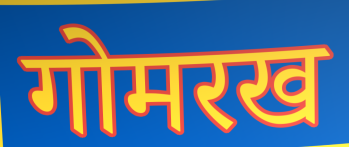
गोमरख